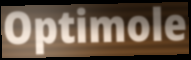
Optimole